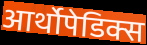
आर्थोपेडिक्स